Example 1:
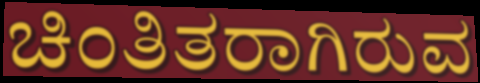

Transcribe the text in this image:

ಚಿಂತಿತರಾಗಿರುವ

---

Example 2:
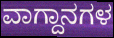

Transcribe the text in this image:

ವಾಗ್ದಾನಗಳ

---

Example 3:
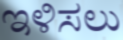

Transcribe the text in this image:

ಇಳಿಸಲು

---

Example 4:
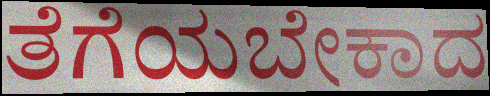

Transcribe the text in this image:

ತೆಗೆಯಬೇಕಾದ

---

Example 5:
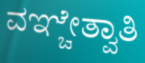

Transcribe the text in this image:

ವಞ್ಚೇತ್ವಾತಿ